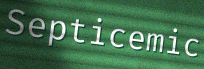
Septicemic